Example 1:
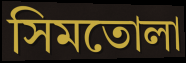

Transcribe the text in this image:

সিমতোলা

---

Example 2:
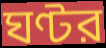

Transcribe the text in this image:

ঘণ্টর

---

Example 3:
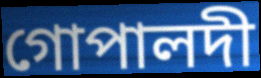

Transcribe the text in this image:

গোপালদী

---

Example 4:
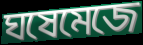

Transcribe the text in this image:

ঘষেমেজে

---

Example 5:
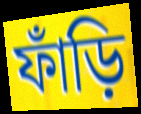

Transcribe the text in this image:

ফাঁড়ি